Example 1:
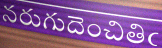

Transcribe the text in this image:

నరుగుదెంచితిఁ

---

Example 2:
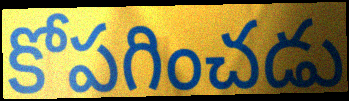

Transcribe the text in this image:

కోపగించడు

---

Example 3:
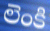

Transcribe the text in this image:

లెంకి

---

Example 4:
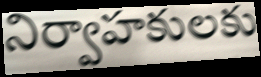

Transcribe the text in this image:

నిర్వాహకులకు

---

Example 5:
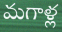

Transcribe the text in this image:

మగాళ్ల